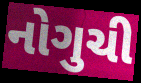
નોગુચી